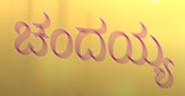
ಚಂದಯ್ಯ